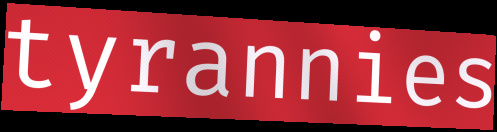
tyrannies